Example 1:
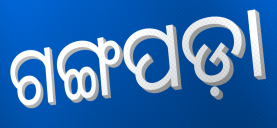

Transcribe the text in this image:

ଗଙ୍ଗପଡ଼ା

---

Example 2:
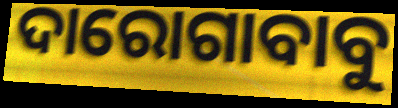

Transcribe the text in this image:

ଦାରୋଗାବାବୁ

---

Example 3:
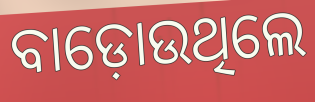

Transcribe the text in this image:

ବାଡ଼ୋଉଥିଲେ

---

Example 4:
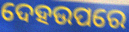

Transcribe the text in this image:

ଦେହଉପରେ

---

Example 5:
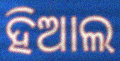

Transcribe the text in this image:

ହିଆଲ